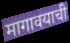
मागावयाची